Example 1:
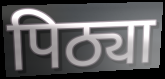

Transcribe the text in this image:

पिठ्या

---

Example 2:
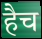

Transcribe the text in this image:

हैच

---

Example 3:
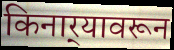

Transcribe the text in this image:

किनार्यावरून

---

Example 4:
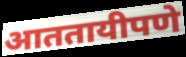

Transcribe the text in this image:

आततायीपणे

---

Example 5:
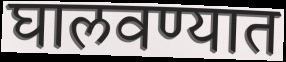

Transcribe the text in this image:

घालवण्यात